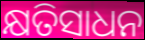
କ୍ଷତିସାଧନ